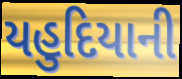
યહુદિયાની